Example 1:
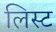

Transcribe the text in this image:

लिस्ट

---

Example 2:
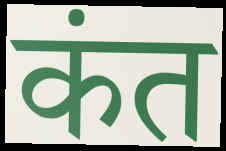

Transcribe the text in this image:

कंत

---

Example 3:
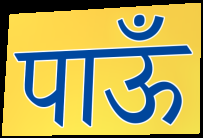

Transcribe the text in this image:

पाऊँ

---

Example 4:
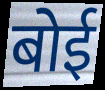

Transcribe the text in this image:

बोई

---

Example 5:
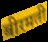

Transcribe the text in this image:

बीरमती